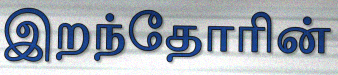
இறந்தோரின்